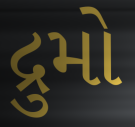
દ્રુમો